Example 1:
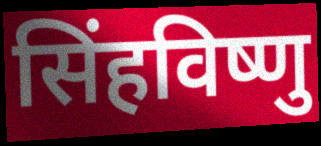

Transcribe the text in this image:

सिंहविष्णु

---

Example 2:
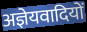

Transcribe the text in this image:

अज्ञेयवादियों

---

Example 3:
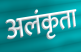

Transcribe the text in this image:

अलंकृता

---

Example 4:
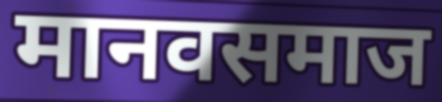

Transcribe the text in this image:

मानवसमाज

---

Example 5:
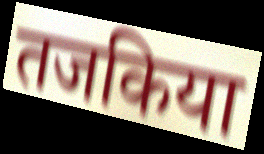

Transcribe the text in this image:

तजकिया